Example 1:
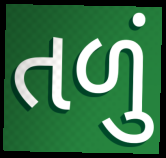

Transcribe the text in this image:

તળું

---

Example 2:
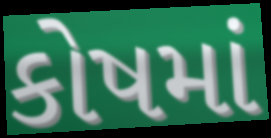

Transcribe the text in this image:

કોષમાં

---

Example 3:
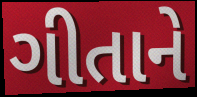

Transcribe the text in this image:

ગીતાને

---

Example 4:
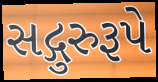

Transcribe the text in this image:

સદ્ગુરુરૂપે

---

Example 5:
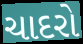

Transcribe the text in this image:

ચાદરો